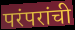
परंपरांची